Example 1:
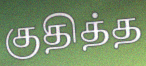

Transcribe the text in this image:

குதித்த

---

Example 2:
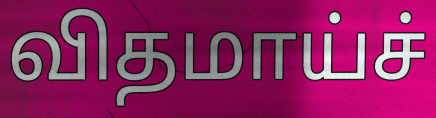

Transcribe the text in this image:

விதமாய்ச்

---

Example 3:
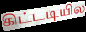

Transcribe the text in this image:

கிட்டடியில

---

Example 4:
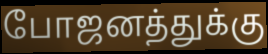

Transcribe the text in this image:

போஜனத்துக்கு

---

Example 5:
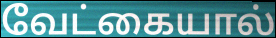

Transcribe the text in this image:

வேட்கையால்